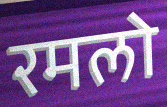
रमलो